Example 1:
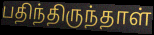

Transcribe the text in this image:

பதிந்திருந்தாள்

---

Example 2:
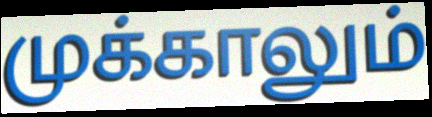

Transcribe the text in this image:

முக்காலும்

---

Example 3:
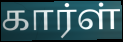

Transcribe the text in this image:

கார்ள்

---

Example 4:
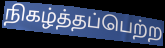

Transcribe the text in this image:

நிகழ்த்தப்பெற்ற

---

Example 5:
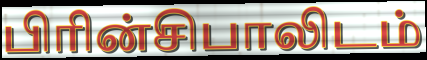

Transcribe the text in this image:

பிரின்சிபாலிடம்